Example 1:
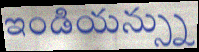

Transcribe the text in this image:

ఇండియన్స్ను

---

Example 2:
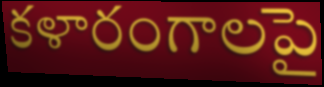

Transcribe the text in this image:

కళారంగాలపై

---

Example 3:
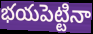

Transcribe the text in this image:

భయపెట్టినా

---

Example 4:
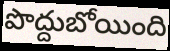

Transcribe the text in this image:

పొద్దుబోయింది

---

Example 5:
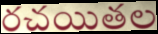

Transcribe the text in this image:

రచయితల